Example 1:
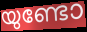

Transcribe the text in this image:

യുണ്ടോ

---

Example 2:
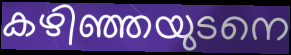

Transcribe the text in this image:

കഴിഞ്ഞയുടനെ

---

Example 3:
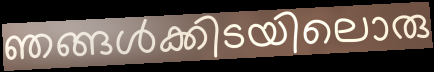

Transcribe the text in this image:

ഞങ്ങൾക്കിടയിലൊരു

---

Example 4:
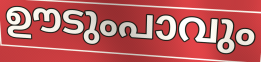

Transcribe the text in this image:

ഊടുംപാവും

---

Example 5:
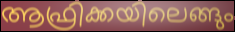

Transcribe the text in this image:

ആഫ്രിക്കയിലെങ്ങും